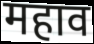
महाव